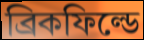
ব্রিকফিল্ডে